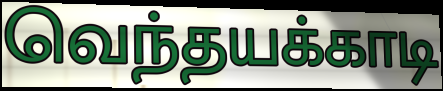
வெந்தயக்காடி